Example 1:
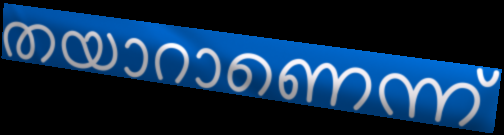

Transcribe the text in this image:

തയാറാണെന്ന്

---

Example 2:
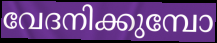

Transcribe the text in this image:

വേദനിക്കുമ്പോ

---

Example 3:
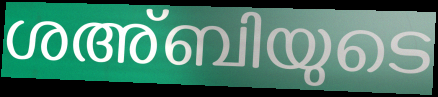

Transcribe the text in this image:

ശഅ്ബിയുടെ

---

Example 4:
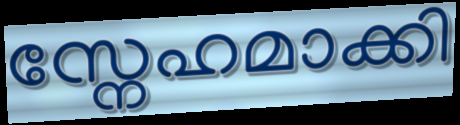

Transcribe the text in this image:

സ്നേഹമാക്കി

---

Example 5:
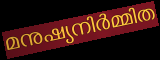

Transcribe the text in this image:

മനുഷ്യനിർമ്മിത